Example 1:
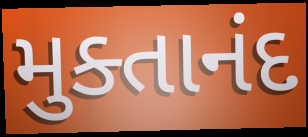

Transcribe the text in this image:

મુક્તાનંદ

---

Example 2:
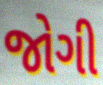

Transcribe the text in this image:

જોગી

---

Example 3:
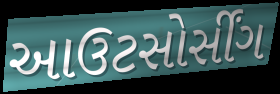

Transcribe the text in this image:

આઉટસોર્સીંગ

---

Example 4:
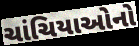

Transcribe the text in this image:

ચાંચિયાઓનો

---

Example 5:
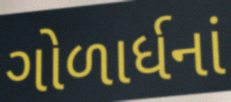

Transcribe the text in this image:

ગોળાર્ધનાં